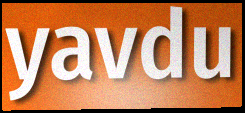
yavdu